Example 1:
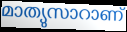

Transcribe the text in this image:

മാത്യുസാറാണ്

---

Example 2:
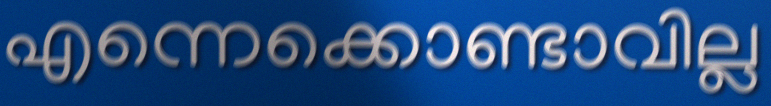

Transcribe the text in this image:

എന്നെക്കൊണ്ടാവില്ല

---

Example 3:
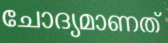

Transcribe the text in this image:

ചോദ്യമാണത്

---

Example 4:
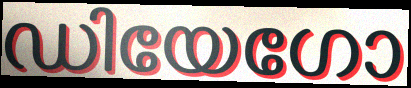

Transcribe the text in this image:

ഡിയേഗോ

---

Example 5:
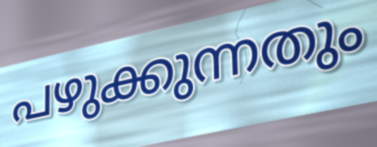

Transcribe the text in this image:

പഴുക്കുന്നതും